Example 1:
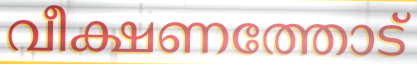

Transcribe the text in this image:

വീക്ഷണത്തോട്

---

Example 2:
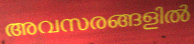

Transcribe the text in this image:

അവസരങ്ങളിൽ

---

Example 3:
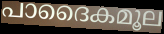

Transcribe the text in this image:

പാദൈകമൂല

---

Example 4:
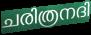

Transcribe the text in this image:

ചരിത്രനദി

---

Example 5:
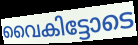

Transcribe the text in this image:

വൈകിട്ടോടെ